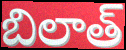
బిలాత్